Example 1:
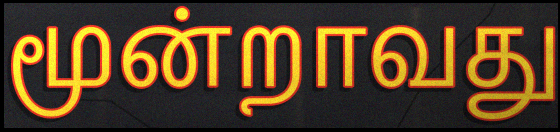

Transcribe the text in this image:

மூன்றாவது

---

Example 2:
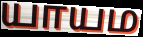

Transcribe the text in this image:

யாயம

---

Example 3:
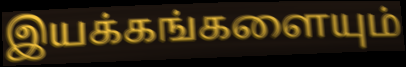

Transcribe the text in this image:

இயக்கங்களையும்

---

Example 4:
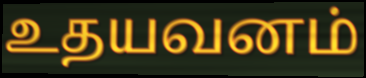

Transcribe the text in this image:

உதயவனம்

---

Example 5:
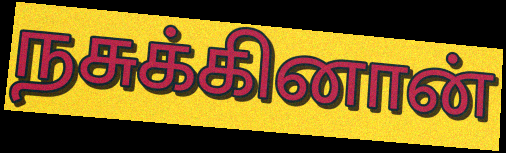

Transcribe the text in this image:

நசுக்கினான்